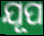
ଯୂପ